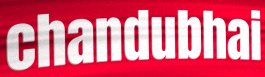
chandubhai